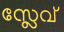
സ്ലേവ്